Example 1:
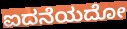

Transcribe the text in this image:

ಐದನೆಯದೋ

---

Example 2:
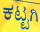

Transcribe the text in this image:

ಕಟ್ಟಗಿ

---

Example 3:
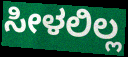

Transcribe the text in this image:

ಸೀಳಲಿಲ್ಲ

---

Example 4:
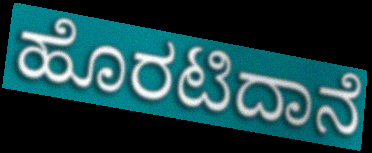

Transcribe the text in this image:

ಹೊರಟಿದಾನೆ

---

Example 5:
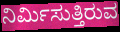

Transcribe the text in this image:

ನಿರ್ಮಿಸುತ್ತಿರುವ